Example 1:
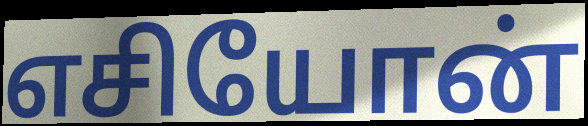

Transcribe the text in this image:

எசியோன்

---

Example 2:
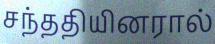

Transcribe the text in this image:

சந்ததியினரால்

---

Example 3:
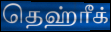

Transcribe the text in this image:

தெஹ்ரீக்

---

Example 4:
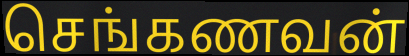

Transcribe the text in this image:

செங்கணவன்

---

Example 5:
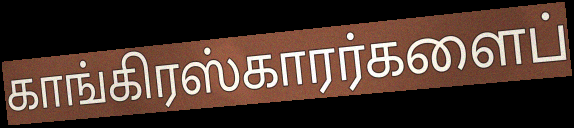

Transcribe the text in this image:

காங்கிரஸ்காரர்களைப்